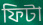
ফিটা